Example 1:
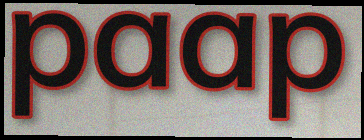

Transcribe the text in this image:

paap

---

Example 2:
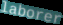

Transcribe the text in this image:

laborer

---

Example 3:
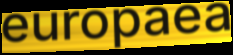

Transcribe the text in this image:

europaea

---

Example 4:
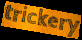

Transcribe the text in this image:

trickery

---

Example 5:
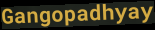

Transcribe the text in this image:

Gangopadhyay